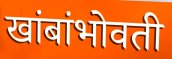
खांबांभोवती